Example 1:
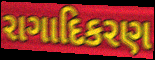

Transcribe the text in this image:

રાગાદિકરણ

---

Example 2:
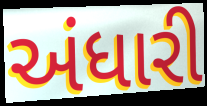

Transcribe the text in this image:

અંધારી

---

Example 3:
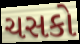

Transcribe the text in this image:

ચસકો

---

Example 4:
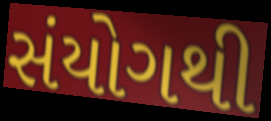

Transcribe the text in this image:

સંયોગથી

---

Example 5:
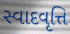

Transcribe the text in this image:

સ્વાદવૃત્તિ